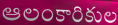
ఆలంకారికుల